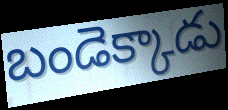
బండెక్కాడు